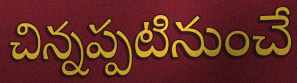
చిన్నప్పటినుంచే